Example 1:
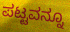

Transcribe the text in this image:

ಪಟ್ಟವನ್ನೂ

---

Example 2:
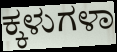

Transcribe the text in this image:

ಕ್ಕಳುಗಳಾ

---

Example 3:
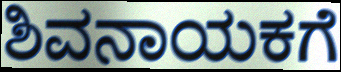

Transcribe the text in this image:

ಶಿವನಾಯಕಗೆ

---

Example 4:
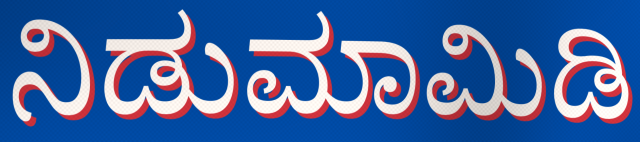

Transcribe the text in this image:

ನಿಡುಮಾಮಿಡಿ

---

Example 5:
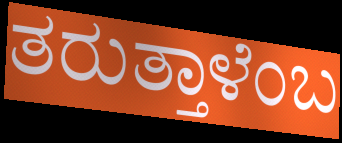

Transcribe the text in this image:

ತರುತ್ತಾಳೆಂಬ